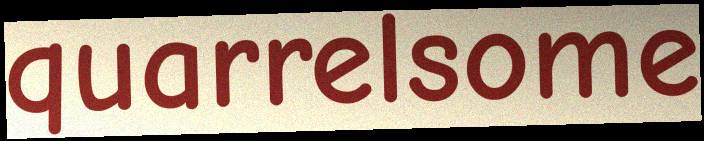
quarrelsome